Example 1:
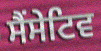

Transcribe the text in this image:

ਸੈਂਸੇਟਿਵ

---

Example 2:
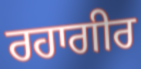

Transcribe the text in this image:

ਰਹਾਗੀਰ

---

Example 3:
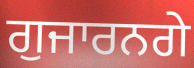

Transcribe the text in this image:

ਗੁਜਾਰਨਗੇ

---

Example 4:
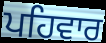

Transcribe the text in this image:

ਪਹਿਵਾਰ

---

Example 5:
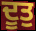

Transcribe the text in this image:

ਦੂਤੁ